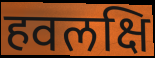
हवलक्षि